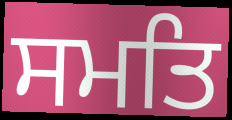
ਸਮਤਿ